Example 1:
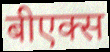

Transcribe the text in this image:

बीएक्स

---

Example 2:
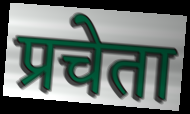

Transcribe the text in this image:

प्रचेता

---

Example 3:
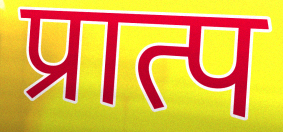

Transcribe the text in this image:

प्रात्प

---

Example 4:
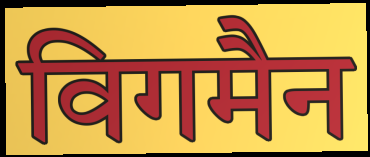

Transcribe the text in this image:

विगमैन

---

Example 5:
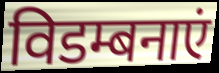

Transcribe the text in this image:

विडम्बनाएं